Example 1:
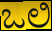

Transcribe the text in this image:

ಒಲಿ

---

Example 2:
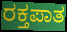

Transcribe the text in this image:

ರಕ್ತಪಾತ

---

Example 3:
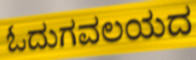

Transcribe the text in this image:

ಓದುಗವಲಯದ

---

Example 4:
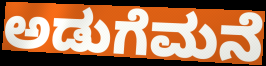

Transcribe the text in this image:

ಅಡುಗೆಮನೆ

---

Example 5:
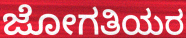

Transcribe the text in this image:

ಜೋಗತಿಯರ